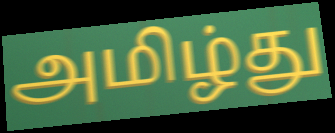
அமிழ்து